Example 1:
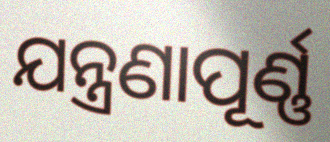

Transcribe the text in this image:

ଯନ୍ତ୍ରଣାପୂର୍ଣ୍ଣ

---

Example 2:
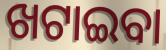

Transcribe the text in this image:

ଖଟାଇବା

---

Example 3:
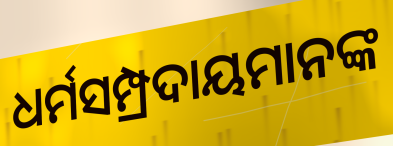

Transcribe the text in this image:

ଧର୍ମସମ୍ପ୍ରଦାୟମାନଙ୍କ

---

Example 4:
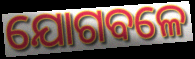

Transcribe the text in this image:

ଯୋଗବଳେ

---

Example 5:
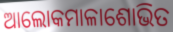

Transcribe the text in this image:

ଆଲୋକମାଳାଶୋଭିତ